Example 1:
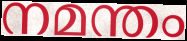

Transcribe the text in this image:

നമന്തം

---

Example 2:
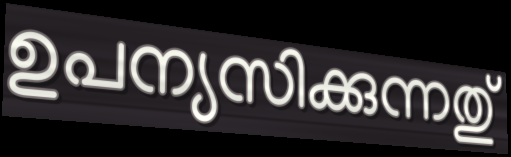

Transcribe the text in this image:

ഉപന്യസിക്കുന്നതു്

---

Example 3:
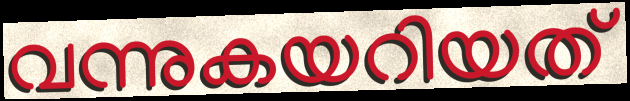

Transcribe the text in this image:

വന്നുകയറിയത്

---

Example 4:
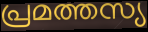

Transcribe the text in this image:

പ്രമത്തസ്യ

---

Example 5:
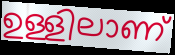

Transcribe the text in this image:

ഉള്ളിലാണ്